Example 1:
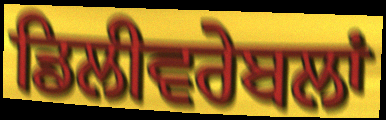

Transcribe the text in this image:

ਡਿਲੀਵਰੇਬਲਾਂ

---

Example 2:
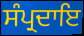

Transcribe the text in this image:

ਸੰਪ੍ਰਦਾਇ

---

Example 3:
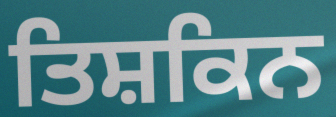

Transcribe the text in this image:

ਤਿਸ਼ਕਿਨ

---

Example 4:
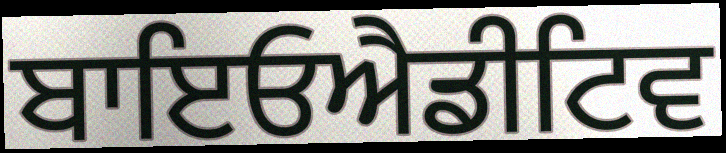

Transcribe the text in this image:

ਬਾਇਓਐਡੀਟਿਵ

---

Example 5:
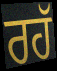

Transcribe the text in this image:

ਰਹੱ